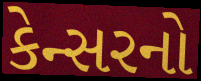
કેન્સરનો